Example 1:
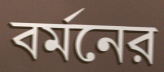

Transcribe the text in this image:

বর্মনের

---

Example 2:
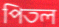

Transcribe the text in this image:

পিতল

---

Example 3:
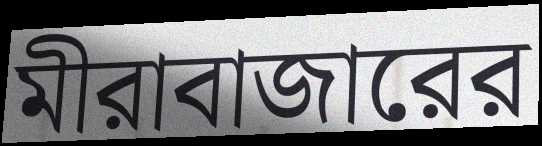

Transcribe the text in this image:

মীরাবাজারের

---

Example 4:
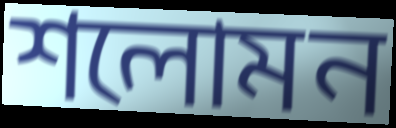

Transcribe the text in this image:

শলোমন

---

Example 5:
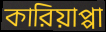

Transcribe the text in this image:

কারিয়াপ্পা